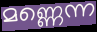
മണ്ണെന്ന